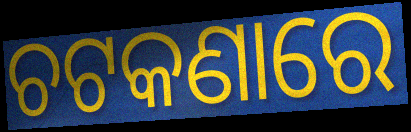
ଚଟକଣାରେ